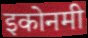
इकोनमी